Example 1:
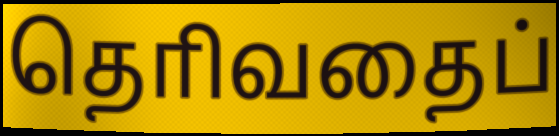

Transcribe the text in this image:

தெரிவதைப்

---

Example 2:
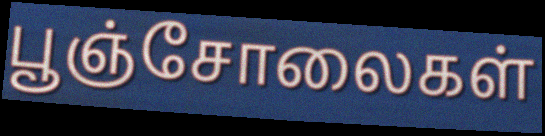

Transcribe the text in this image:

பூஞ்சோலைகள்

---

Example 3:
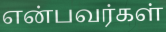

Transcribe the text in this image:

என்பவர்கள்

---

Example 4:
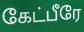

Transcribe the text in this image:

கேட்பீரே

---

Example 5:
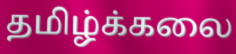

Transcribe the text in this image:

தமிழ்க்கலை